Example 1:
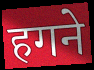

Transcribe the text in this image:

हगने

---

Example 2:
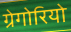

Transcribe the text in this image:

ग्रेगोरियो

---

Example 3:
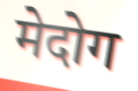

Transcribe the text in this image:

मेदोग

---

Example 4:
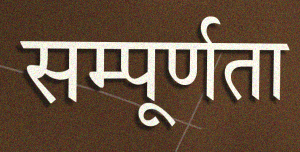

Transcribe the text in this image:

सम्पूर्णता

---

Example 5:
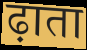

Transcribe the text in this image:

ढ़ाता